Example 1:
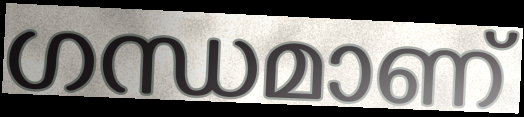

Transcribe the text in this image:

ഗന്ധമാണ്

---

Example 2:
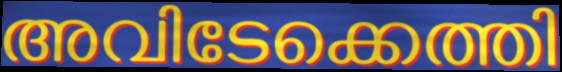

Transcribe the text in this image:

അവിടേക്കെത്തി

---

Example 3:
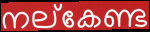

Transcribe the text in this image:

നല്കേണ്ട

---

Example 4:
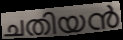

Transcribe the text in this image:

ചതിയൻ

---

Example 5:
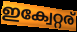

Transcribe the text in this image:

ഇക്വേറ്റര്